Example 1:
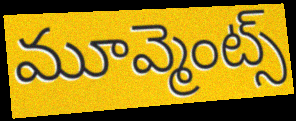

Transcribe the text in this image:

మూవ్మెంట్స్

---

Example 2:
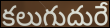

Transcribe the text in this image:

కలుగుదురే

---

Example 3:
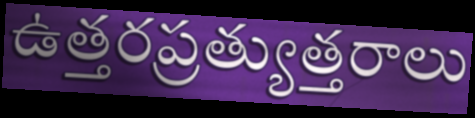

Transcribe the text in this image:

ఉత్తరప్రత్యుత్తరాలు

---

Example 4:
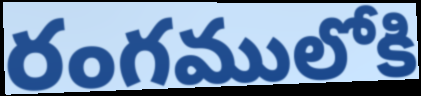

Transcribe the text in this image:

రంగములోకి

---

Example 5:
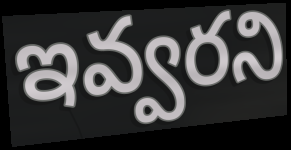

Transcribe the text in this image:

ఇవ్వరని